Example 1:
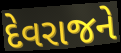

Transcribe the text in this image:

દેવરાજને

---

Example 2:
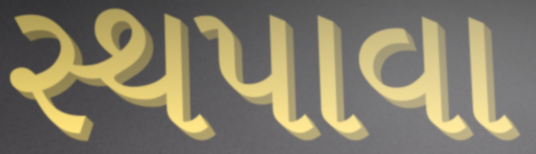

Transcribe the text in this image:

સ્થપાવા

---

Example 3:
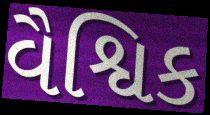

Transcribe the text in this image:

વૈશ્વિક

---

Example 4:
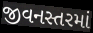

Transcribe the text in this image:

જીવનસ્તરમાં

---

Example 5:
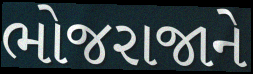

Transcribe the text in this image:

ભોજરાજાને